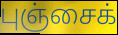
புஞ்சைக்